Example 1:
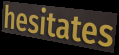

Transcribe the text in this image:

hesitates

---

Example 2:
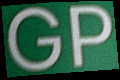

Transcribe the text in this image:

GP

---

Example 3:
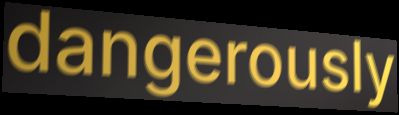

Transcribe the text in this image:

dangerously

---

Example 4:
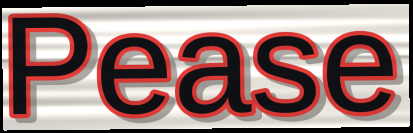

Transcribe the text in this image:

Pease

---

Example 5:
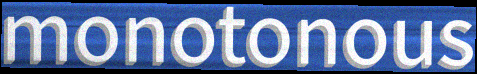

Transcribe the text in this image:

monotonous